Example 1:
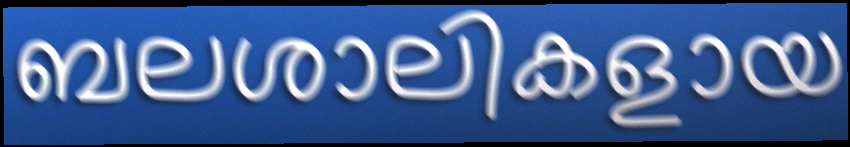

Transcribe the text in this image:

ബലശാലികളായ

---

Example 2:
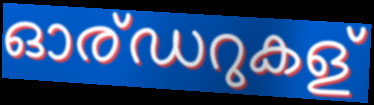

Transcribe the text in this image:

ഓര്ഡറുകള്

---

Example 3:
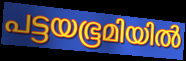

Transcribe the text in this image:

പട്ടയഭൂമിയിൽ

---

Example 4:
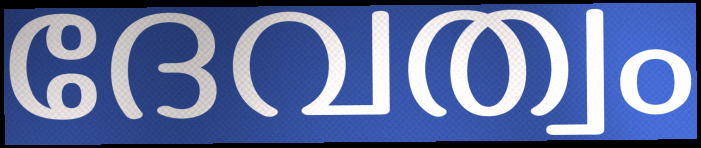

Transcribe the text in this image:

ദേവത്വം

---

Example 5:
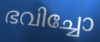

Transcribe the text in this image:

ഭവിച്ചോ